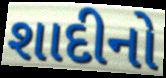
શાદીનો